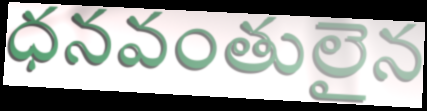
ధనవంతులైన